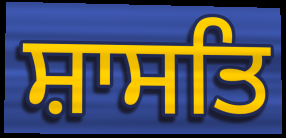
ਸ਼ਾਸਤਿ